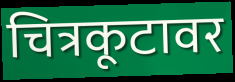
चित्रकूटावर